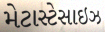
મેટાસ્ટેસાઇઝ